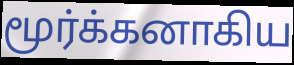
மூர்க்கனாகிய